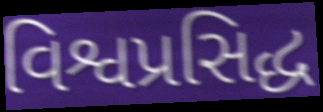
વિશ્વપ્રસિદ્ધ